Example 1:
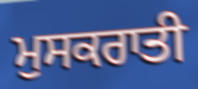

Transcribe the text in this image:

ਮੁਸਕਰਾਤੀ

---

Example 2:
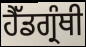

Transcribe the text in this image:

ਹੈੱਡਗ੍ਰੰਥੀ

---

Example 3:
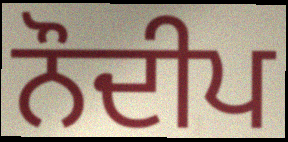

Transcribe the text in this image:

ਨੌਦੀਪ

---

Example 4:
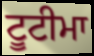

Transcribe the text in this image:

ਟੂਟੀਮਾ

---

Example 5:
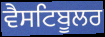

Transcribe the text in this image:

ਵੈਸਟਿਬੂਲਰ